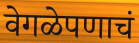
वेगळेपणाचं